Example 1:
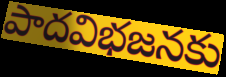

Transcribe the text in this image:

పాదవిభజనకు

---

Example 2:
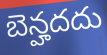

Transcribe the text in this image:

బెన్హదదు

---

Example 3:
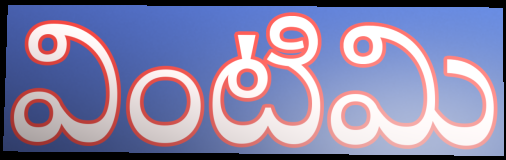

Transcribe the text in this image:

వింటిమి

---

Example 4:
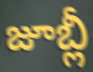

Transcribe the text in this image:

జూబ్లీ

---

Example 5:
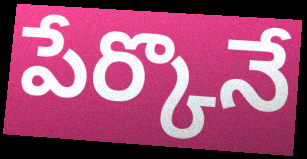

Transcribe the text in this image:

పేర్కొనే